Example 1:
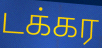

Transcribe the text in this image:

டக்கர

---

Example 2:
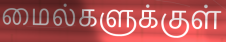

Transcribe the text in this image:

மைல்களுக்குள்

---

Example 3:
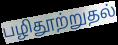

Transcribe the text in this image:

பழிதூற்றுதல்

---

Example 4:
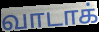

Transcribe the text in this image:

வாடாக்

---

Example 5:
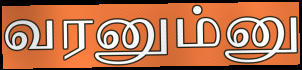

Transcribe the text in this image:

வரனும்னு